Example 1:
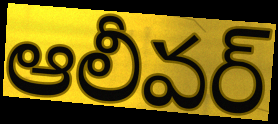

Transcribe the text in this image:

ఆలీవర్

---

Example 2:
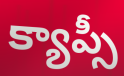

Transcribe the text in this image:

క్యాప్సీ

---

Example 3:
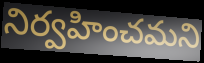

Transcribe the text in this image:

నిర్వహించమని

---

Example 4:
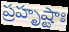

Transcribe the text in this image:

ప్రహృష్టాః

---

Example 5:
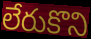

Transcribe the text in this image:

లేరుకొని